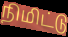
நிமிட்டு